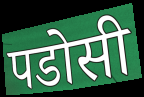
पडोसी